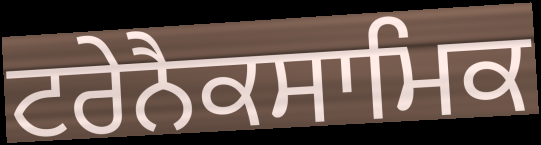
ਟਰੇਨੈਕਸਾਮਿਕ